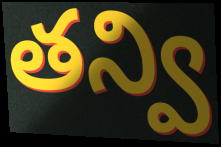
తన్వి